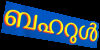
ബഹറുൾ